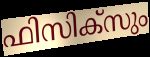
ഫിസിക്സും